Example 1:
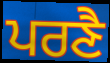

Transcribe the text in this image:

ਪਰਣੈ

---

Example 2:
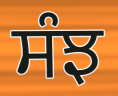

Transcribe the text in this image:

ਸੰਝ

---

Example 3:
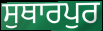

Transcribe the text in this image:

ਸੁਥਾਰਪੁਰ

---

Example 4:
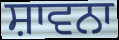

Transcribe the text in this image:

ਸ਼ਾਵਨਾ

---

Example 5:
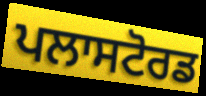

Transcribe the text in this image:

ਪਲਾਸਟੋਰਡ